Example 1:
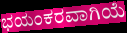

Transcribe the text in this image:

ಭಯಂಕರವಾಗಿಯೆ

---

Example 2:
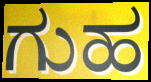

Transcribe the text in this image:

ಗುಹ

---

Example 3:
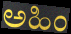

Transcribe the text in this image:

ಅಹಿಂ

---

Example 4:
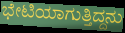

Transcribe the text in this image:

ಭೇಟಿಯಾಗುತ್ತಿದ್ದನು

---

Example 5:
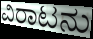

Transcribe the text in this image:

ವಿರಾಟನು